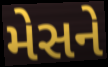
મેસને